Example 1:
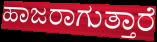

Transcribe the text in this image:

ಹಾಜರಾಗುತ್ತಾರೆ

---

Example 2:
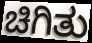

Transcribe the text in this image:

ಚಿಗಿತು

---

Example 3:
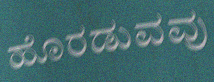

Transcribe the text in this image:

ಹೊರಡುವವು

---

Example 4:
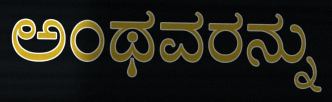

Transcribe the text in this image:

ಅಂಥವರನ್ನು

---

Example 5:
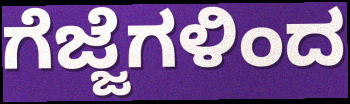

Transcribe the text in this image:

ಗೆಜ್ಜೆಗಳಿಂದ